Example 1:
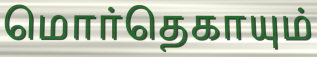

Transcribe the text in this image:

மொர்தெகாயும்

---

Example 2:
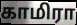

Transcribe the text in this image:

காமிரா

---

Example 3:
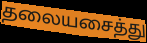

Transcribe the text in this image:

தலையசைத்து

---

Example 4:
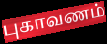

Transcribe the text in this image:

புகாவணம்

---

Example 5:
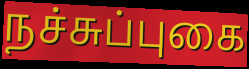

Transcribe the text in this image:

நச்சுப்புகை